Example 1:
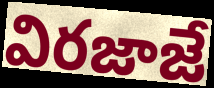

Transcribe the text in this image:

విరజాజే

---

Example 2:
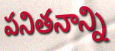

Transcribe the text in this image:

పనితనాన్ని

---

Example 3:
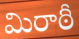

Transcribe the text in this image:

మిరాఠీ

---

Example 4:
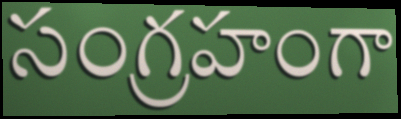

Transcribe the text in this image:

సంగ్రహంగా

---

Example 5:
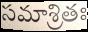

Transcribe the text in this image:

సమాశ్రితః